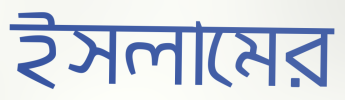
ইসলামের